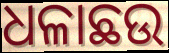
ଧଳାଛଉ